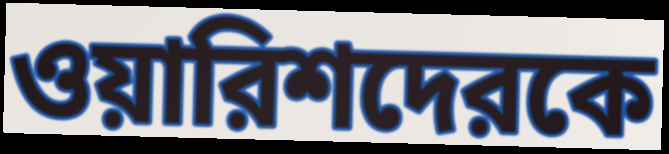
ওয়ারিশদেরকে